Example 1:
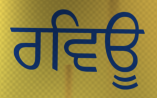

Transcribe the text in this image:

ਰਵਿਊ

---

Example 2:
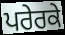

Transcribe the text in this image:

ਪਰੇਰਕੇ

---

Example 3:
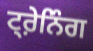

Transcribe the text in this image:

ਟ੍ਰ਼ੇਨਿੰਗ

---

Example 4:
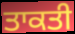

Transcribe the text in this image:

ਤਾਕਤੀ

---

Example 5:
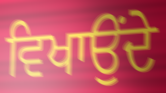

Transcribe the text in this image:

ਵਿਖਾਉੁਂਦੇ